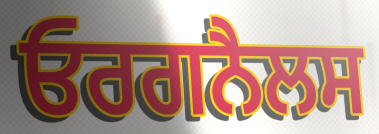
ਓਰਗਨੈਲਸ